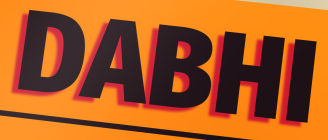
DABHI